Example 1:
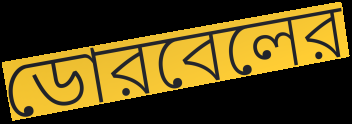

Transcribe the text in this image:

ডোরবেলের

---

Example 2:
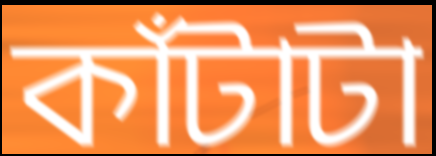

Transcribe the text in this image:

কাঁটাটা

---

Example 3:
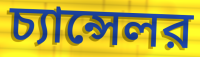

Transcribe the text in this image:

চ্যান্সেলর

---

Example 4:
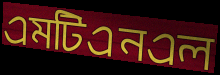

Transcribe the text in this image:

এমটিএনএল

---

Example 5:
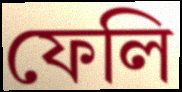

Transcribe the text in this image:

ফেলি